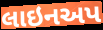
લાઇનઅપ